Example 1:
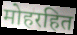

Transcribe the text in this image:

मोहरहित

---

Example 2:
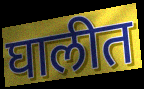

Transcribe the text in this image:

घालीत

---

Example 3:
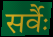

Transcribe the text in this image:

सर्वैः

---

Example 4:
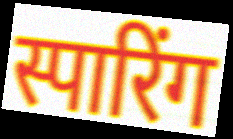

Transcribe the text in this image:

स्पारिंग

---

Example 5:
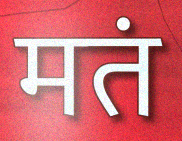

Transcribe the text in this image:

मतं